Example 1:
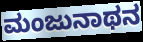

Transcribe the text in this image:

ಮಂಜುನಾಥನ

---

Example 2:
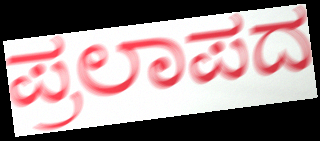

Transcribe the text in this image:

ಪ್ರಲಾಪದ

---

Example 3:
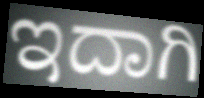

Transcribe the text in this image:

ಇದಾಗಿ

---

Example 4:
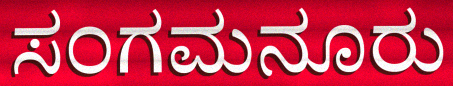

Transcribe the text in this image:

ಸಂಗಮನೂರು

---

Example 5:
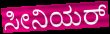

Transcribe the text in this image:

ಸೀನಿಯರ್